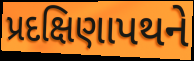
પ્રદક્ષિણાપથને